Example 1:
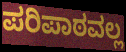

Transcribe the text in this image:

ಪರಿಪಾಠವಲ್ಲ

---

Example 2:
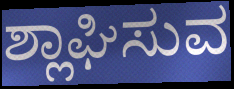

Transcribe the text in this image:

ಶ್ಲಾಘಿಸುವ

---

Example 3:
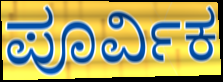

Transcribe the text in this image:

ಪೂರ್ವಿಕ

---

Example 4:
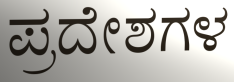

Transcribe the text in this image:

ಪ್ರದೇಶಗಳ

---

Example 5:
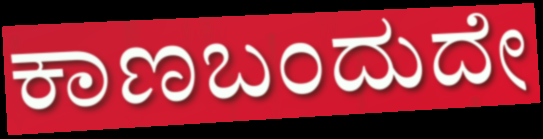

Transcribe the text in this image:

ಕಾಣಬಂದುದೇ